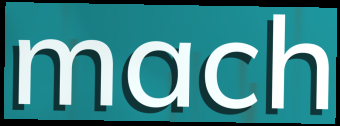
mach